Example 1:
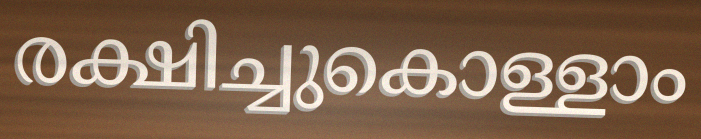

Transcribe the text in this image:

രക്ഷിച്ചുകൊള്ളാം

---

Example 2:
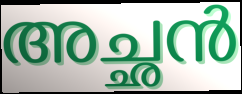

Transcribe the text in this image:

അച്ഛൻ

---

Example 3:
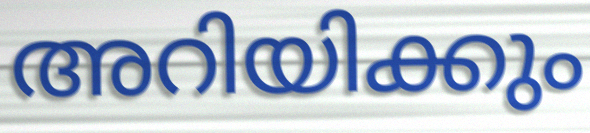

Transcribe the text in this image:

അറിയിക്കും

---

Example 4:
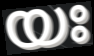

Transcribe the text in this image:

യഃ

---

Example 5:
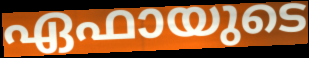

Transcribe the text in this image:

ഏഫായുടെ